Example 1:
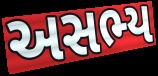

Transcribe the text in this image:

અસભ્ય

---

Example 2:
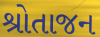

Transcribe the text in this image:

શ્રોતાજન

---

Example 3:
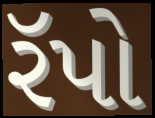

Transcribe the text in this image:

રૅપો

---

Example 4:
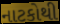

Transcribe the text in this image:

નાટકોથી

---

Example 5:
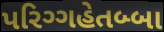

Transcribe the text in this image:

પરિગ્ગહેતબ્બા